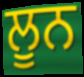
ਲੂਨ